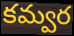
కమ్వర